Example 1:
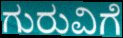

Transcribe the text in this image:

ಗುರುವಿಗೆ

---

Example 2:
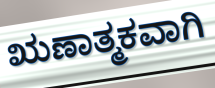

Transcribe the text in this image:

ಋಣಾತ್ಮಕವಾಗಿ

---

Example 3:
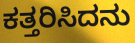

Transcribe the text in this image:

ಕತ್ತರಿಸಿದನು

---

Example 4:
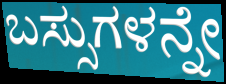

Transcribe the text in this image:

ಬಸ್ಸುಗಳನ್ನೇ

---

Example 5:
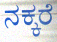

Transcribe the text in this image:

ನಕ್ಕರೆ